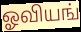
ஓவியங்